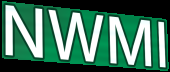
NWMI